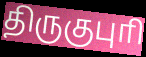
திருகுபுரி